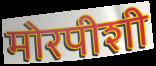
मोरपीशी